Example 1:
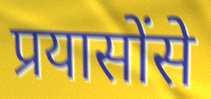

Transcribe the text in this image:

प्रयासोंसे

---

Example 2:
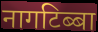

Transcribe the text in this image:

नागटिब्बा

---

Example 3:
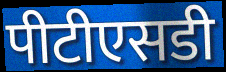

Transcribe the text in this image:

पीटीएसडी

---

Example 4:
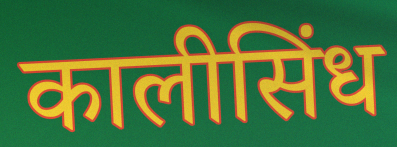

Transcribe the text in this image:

कालीसिंध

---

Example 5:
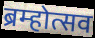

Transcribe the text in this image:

ब्रम्होत्सव